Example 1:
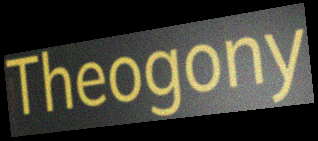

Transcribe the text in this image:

Theogony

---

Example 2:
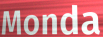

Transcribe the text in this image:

Monda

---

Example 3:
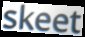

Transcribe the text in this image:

skeet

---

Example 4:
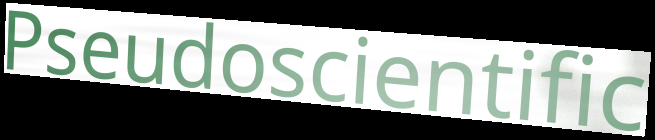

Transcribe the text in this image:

Pseudoscientific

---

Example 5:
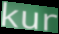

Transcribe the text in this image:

kur